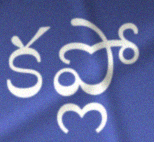
కప్లో